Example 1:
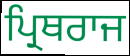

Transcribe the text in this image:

ਪ੍ਰਿਥਰਾਜ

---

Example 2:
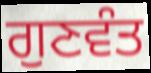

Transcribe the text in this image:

ਗੁਣਵੰਤ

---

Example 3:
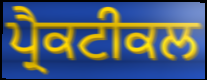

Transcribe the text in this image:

ਪ੍ਰੈਕਟੀਕਲ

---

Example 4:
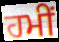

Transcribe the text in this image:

ਹਮੀਂ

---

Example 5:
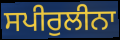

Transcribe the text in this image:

ਸਪੀਰੁਲੀਨਾ